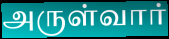
அருள்வார்